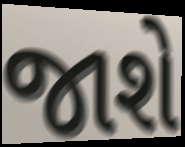
જાશે